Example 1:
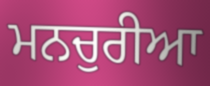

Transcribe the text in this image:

ਮਨਚੁਰੀਆ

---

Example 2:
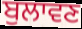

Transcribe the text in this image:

ਬੁਲਾਵਣ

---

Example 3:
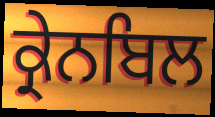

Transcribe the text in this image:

ਕ੍ਰੇਨਬਿਲ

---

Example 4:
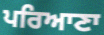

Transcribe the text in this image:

ਪਰਿਆਣਾ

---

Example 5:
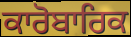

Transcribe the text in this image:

ਕਾਰੋਬਾਰਿਕ